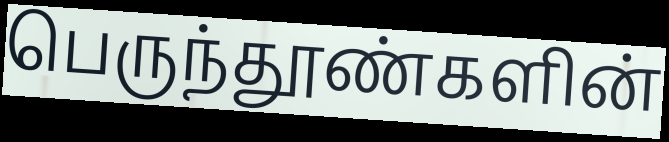
பெருந்தூண்களின்